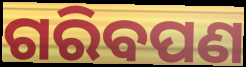
ଗରିବପଣ